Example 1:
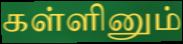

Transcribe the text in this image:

கள்ளினும்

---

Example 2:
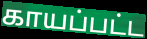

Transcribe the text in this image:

காயப்பட்ட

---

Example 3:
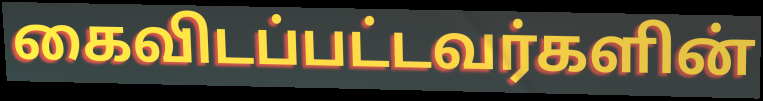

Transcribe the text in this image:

கைவிடப்பட்டவர்களின்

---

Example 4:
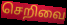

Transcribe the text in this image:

செறிவை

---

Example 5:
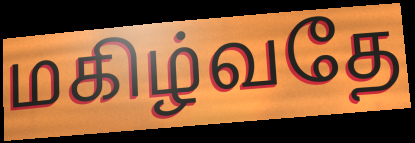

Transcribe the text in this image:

மகிழ்வதே